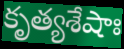
కృత్యశేషాః